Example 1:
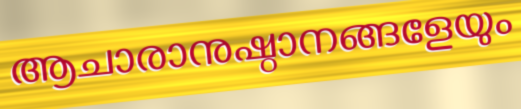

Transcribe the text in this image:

ആചാരാനുഷ്ഠാനങ്ങളേയും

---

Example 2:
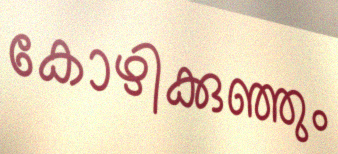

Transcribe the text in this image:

കോഴിക്കുഞ്ഞും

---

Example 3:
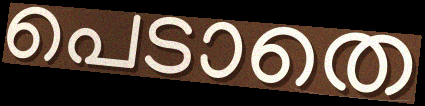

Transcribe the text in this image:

പെടാതെ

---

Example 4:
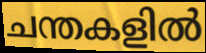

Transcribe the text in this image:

ചന്തകളിൽ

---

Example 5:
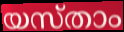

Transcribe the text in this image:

യസ്താം